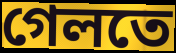
গেলতে